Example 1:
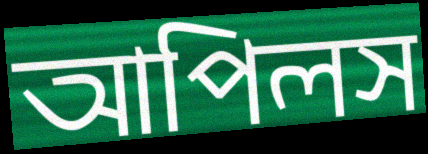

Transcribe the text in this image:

আপিলস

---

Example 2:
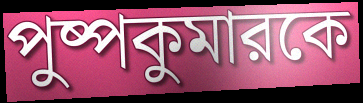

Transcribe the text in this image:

পুষ্পকুমারকে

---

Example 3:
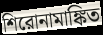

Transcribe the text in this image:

শিরোনামাঙ্কিত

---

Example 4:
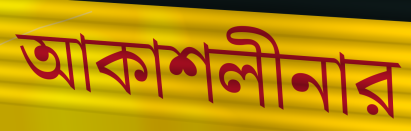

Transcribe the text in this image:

আকাশলীনার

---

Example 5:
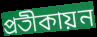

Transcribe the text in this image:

প্রতীকায়ন